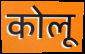
कोलू